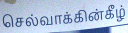
செல்வாக்கின்கீழ்